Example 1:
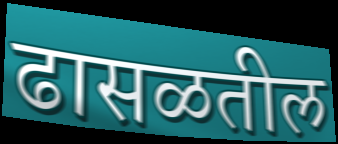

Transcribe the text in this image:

ढासळतील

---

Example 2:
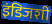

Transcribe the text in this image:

इंडिजशी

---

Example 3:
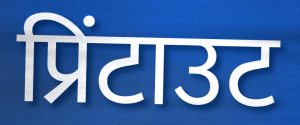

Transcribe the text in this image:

प्रिंटाउट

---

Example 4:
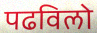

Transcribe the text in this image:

पढविलो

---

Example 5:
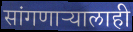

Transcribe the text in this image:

सांगणाऱ्यालाही